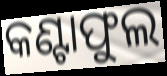
କଣ୍ଟାଫୁଲ